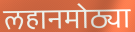
लहानमोठ्या